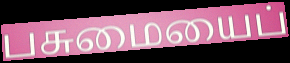
பசுமையைப்